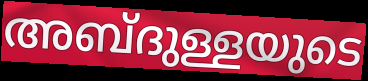
അബ്ദുള്ളയുടെ